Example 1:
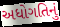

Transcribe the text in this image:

અધોગતિનું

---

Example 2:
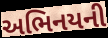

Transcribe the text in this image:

અભિનયની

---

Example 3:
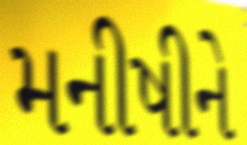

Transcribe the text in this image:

મનીષીને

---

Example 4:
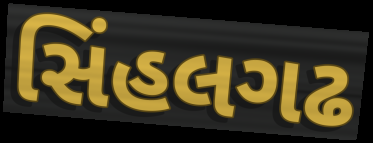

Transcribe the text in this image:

સિંહલગઢ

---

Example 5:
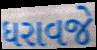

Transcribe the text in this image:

ધરાવજે